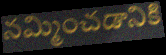
నమ్మించడానికి